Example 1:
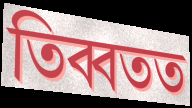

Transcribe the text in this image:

তিব্বতত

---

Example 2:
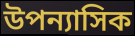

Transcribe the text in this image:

উপন্যাসিক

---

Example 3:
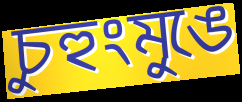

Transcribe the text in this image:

চুহুংমুঙে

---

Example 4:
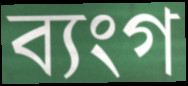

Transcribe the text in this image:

ব্যংগ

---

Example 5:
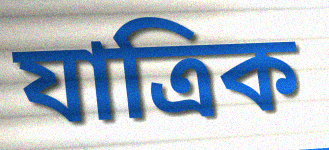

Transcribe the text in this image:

যাত্ৰিক